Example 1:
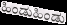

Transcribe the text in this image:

ಹಿಂಡುಹಿಂಡು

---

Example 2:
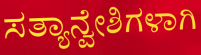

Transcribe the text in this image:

ಸತ್ಯಾನ್ವೇಶಿಗಳಾಗಿ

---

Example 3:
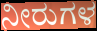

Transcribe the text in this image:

ನೀರುಗಳ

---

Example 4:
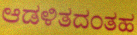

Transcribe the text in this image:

ಆಡಳಿತದಂತಹ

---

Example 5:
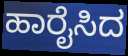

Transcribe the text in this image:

ಹಾರೈಸಿದ